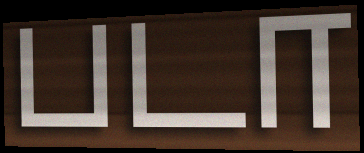
படா